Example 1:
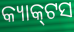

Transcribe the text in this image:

କ୍ୟାକ୍‌ଟସ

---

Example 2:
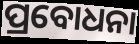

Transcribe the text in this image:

ପ୍ରବୋଧନା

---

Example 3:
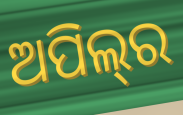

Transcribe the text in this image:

ଅପିଲ୍‍ର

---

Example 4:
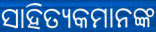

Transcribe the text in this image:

ସାହିତ୍ୟକମାନଙ୍କ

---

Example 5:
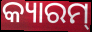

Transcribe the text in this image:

କ୍ୟାରମ୍